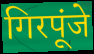
गिरपूंजे